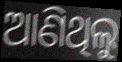
ଆଣିଥିଲୁ